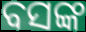
ବସଙ୍କ